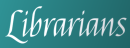
Librarians